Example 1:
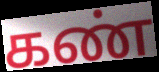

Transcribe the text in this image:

கண்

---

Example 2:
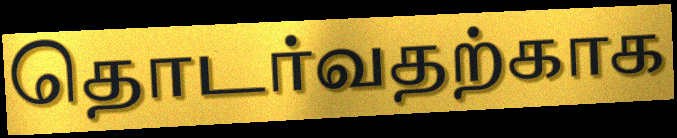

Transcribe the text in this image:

தொடர்வதற்காக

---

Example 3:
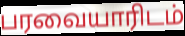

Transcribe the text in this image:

பரவையாரிடம்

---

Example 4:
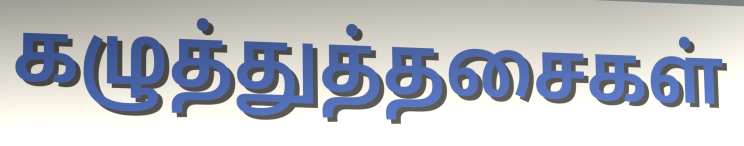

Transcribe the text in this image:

கழுத்துத்தசைகள்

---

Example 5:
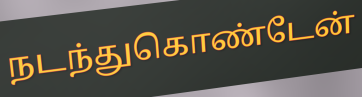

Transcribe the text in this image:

நடந்துகொண்டேன்